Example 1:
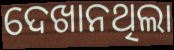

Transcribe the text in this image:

ଦେଖାନଥିଲା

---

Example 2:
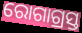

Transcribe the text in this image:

ରୋଗାଗ୍ରସ୍ତ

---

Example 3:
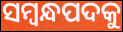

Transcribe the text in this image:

ସମ୍ବନ୍ଧପଦକୁ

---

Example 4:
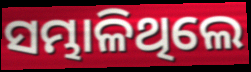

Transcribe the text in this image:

ସମ୍ଭାଳିଥିଲେ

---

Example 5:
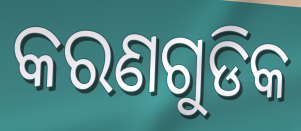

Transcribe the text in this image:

କରଣଗୁଡିକ